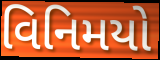
વિનિમયો